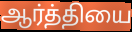
ஆர்த்தியை